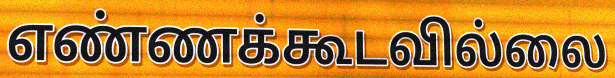
எண்ணக்கூடவில்லை